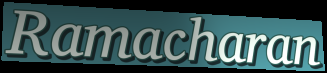
Ramacharan